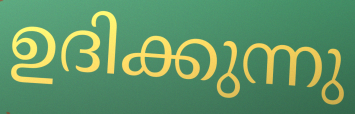
ഉദിക്കുന്നു